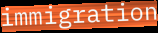
immigration